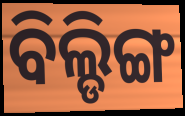
ବିଲ୍ଡିଙ୍ଗ